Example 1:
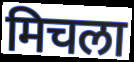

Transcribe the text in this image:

मिचला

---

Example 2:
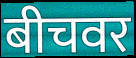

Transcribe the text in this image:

बीचवर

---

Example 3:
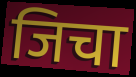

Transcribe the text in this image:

जिचा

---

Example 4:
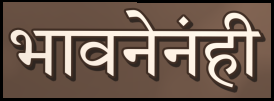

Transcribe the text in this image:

भावनेनंही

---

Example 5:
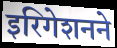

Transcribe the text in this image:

इरिगेशनने